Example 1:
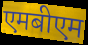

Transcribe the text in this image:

एमबीएम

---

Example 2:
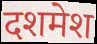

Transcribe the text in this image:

दशमेश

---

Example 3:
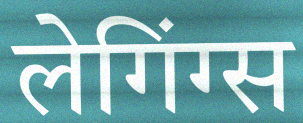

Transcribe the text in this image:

लेगिंग्स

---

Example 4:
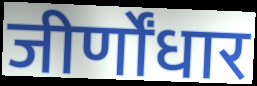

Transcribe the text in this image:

जीर्णोंधार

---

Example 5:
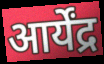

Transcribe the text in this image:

आर्येंद्र